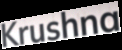
Krushna